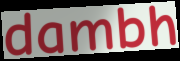
dambh